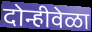
दोन्हीवेळा